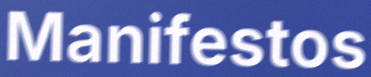
Manifestos